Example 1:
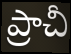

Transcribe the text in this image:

ప్రాచీ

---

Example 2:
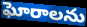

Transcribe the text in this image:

ఘోరాలను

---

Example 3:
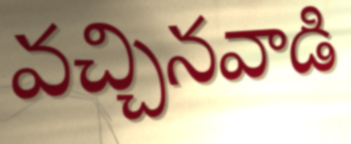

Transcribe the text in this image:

వచ్చినవాడి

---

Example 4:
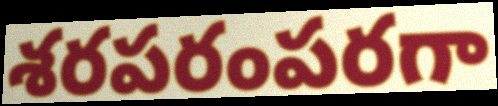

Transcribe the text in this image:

శరపరంపరగా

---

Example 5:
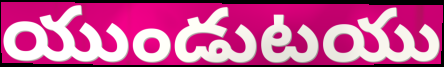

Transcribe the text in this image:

యుండుటయు